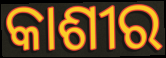
କାଶୀର